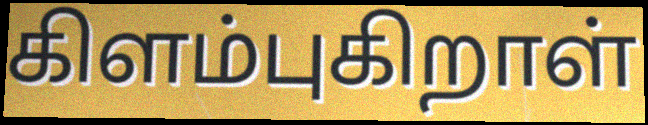
கிளம்புகிறாள்